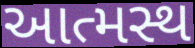
આત્મસ્થ